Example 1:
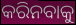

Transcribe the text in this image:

କରିନବାକୁ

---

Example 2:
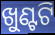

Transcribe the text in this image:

ଖୁଣ୍ଟଟି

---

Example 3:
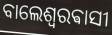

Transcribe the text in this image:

ବାଲେଶ୍ଵରଵାସୀ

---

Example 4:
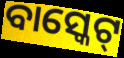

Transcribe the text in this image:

ବାସ୍କେଟ୍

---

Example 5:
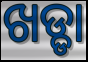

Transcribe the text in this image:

ଖଡ୍ଡା